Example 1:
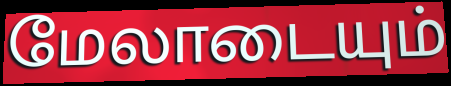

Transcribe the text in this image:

மேலாடையும்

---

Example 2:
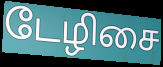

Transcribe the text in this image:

டேழிசை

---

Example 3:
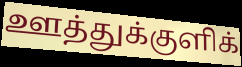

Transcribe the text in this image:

ஊத்துக்குளிக்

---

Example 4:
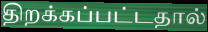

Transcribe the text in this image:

திறக்கப்பட்டதால்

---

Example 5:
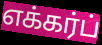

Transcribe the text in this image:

எக்கர்ப்